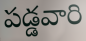
పడ్డవారి